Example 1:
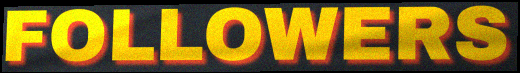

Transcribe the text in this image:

FOLLOWERS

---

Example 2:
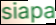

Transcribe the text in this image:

siapa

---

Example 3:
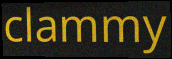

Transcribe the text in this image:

clammy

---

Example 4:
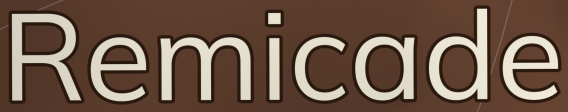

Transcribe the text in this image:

Remicade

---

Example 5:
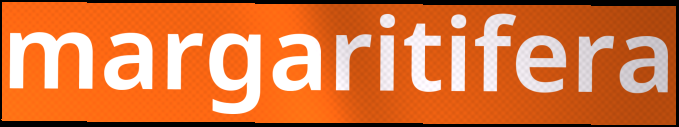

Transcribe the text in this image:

margaritifera